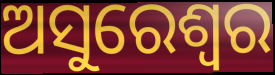
ଅସୁରେଶ୍ଵର